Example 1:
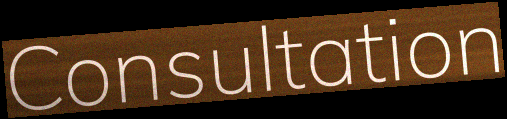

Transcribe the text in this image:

Consultation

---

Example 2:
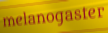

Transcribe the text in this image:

melanogaster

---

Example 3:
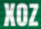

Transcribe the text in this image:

XOZ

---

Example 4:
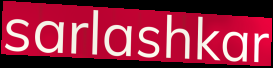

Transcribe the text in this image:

sarlashkar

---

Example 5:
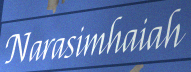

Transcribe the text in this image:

Narasimhaiah